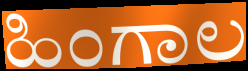
ಹಿಂಗಾಲ